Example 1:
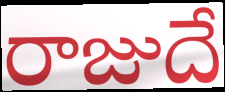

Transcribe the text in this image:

రాజుదే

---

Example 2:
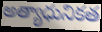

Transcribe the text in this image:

అత్యాధునికత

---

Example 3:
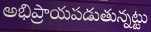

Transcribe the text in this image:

అభిప్రాయపడుతున్నట్టు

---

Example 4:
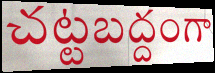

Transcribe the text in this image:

చట్టబద్దంగా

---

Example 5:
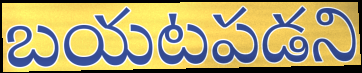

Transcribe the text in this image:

బయటపడని